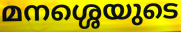
മനശ്ശെയുടെ